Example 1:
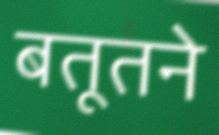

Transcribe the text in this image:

बतूतने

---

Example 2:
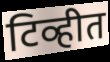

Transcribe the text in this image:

टिव्हीत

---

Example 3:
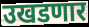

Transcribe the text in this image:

उखडणार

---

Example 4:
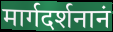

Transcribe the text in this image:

मार्गदर्शनानं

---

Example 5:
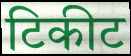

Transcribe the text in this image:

टिकीट